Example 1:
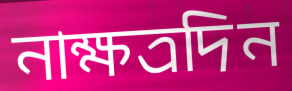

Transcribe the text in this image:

নাক্ষত্রদিন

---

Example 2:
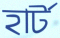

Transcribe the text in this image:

হার্ট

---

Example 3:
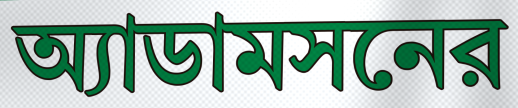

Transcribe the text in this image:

অ্যাডামসনের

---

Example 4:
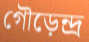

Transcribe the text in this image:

গৌড়েন্দ্র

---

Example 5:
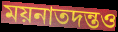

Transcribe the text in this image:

ময়নাতদন্তও